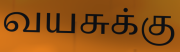
வயசுக்கு